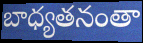
బాధ్యతనంతా